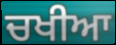
ਚਖੀਆ